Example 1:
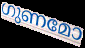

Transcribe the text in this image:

ഗുണമോ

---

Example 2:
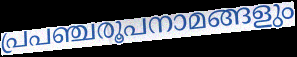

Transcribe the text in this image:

പ്രപഞ്ചരൂപനാമങ്ങളും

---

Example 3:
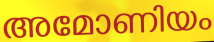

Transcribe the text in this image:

അമോണിയം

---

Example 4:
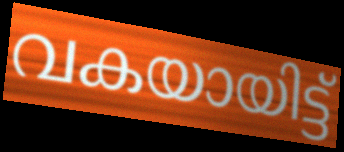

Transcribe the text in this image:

വകയായിട്ട്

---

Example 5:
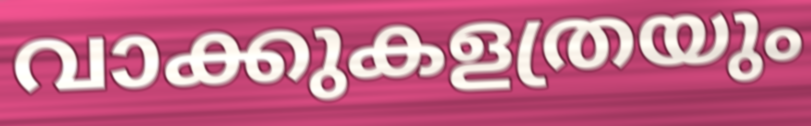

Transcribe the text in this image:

വാക്കുകളത്രയും